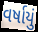
વર્ષાયું